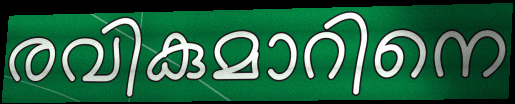
രവികുമാറിനെ